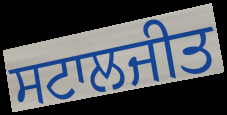
ਸਟਾਲਜੀਤ